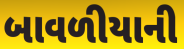
બાવળીયાની